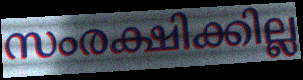
സംരക്ഷിക്കില്ല